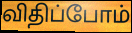
விதிப்போம்